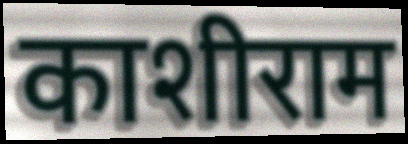
काशीराम